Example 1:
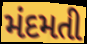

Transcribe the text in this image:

મંદમતી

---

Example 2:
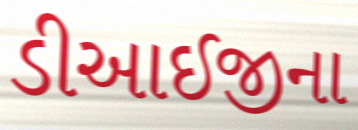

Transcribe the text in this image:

ડીઆઈજીના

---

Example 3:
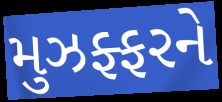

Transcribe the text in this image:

મુઝફ્ફરને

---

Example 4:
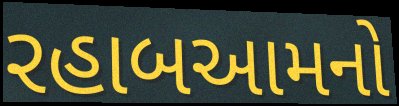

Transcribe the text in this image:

રહાબઆમનો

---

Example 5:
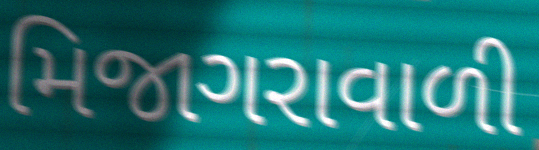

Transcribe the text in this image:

મિજાગરાવાળી